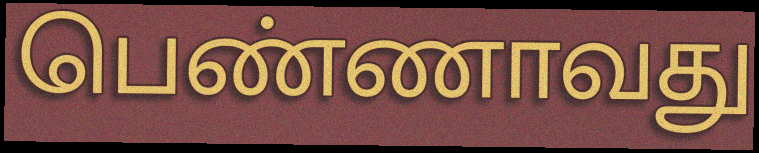
பெண்ணாவது